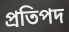
প্রতিপদ